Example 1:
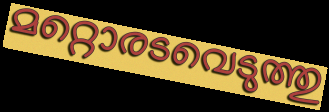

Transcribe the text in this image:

മറ്റൊരടവെടുത്തു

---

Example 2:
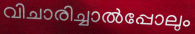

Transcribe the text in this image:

വിചാരിച്ചാൽപ്പോലും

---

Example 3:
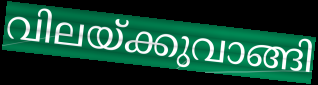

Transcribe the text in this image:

വിലയ്ക്കുവാങ്ങി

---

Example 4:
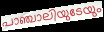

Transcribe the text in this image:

പാഞ്ചാലിയുടേയും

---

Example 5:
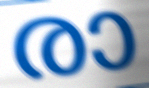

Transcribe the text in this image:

രാ